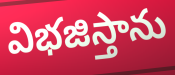
విభజిస్తాను